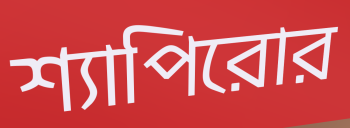
শ্যাপিরোর